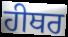
ਹੀਥਰ